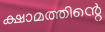
ക്ഷാമത്തിന്റെ